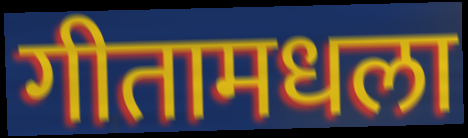
गीतामधला